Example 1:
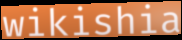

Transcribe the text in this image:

wikishia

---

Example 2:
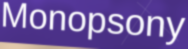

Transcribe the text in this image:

Monopsony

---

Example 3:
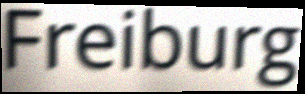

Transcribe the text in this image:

Freiburg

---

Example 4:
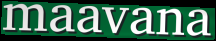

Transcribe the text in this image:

maavana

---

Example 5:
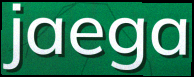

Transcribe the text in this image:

jaega